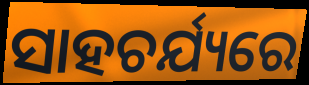
ସାହଚର୍ଯ୍ୟରେ